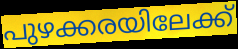
പുഴക്കരയിലേക്ക്